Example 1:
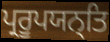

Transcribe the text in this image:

ਪ੍ਰਰੂਪਯਨ੍ਤਿ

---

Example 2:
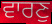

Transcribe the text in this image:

ਵਾਰਣੁ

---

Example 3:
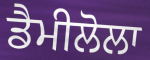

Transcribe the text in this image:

ਡੈਮੀਲੋਲਾ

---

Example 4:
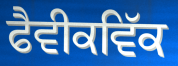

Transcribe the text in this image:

ਫੈਵੀਕਵਿੱਕ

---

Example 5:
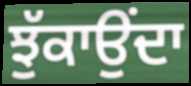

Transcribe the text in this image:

ਝੁੱਕਾਉਂਦਾ